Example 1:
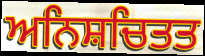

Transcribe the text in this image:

ਅਨਿਸ਼ਚਿਤਤ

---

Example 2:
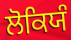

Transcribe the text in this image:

ਲੋਕਿਯੰ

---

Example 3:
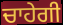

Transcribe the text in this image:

ਚਾਹੇਗੀ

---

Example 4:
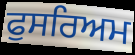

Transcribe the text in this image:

ਫੁਸਰਿਅਮ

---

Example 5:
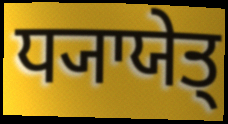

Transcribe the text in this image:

ਧ੍ਯਾਯੇਤ੍